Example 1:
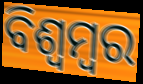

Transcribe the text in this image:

ବିଶ୍ଵମ୍ବର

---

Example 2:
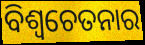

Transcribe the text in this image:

ବିଶ୍ଵଚେତନାର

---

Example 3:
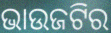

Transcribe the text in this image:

ଭାଉଜଟିର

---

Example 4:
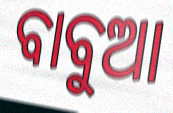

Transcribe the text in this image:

ବାବୁଆ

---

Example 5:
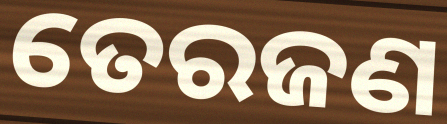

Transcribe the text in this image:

ତେରଜଣ